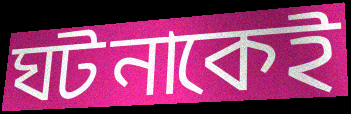
ঘটনাকেই